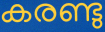
കരണ്ടു